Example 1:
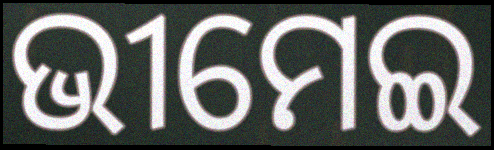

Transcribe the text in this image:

ଭୀମେଇ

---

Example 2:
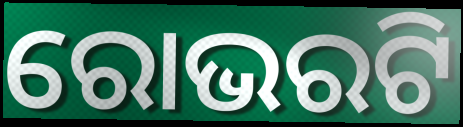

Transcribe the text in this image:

ରୋଭରଟି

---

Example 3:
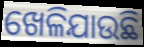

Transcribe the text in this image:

ଖେଳିଯାଉଛି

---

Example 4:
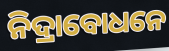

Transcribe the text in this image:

ନିଦ୍ରାବୋଧନେ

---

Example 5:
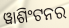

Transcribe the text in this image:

ୱାଶିଂଟନର